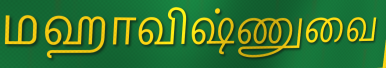
மஹாவிஷ்ணுவை